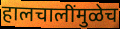
हालचालींमुळेच